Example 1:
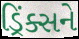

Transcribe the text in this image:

ડ્રિંક્સને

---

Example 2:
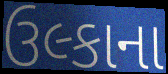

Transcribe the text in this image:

ઉલ્કાના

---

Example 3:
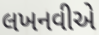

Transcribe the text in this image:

લખનવીએ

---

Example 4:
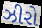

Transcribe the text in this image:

ઝીરો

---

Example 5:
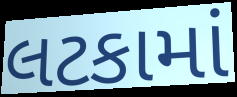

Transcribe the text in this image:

લટકામાં